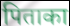
पिताका